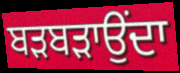
ਬੜਬੜਾਉਂਦਾ